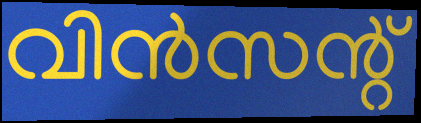
വിൻസന്റ്